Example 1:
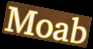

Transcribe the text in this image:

Moab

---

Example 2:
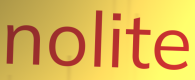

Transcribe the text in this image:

nolite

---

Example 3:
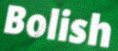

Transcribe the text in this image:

Bolish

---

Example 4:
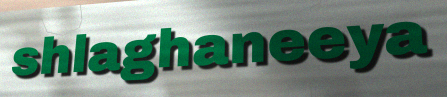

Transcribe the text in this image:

shlaghaneeya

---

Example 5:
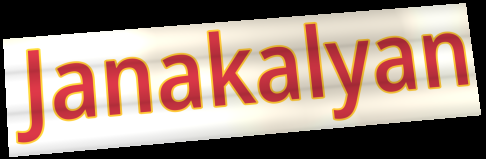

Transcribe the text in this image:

Janakalyan